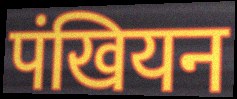
पंखियन